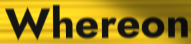
Whereon